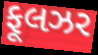
ફૂલઝર